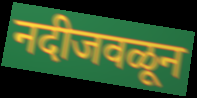
नदीजवळून